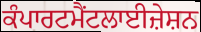
ਕੰਪਾਰਟਮੈਂਟਲਾਈਜ਼ੇਸ਼ਨ